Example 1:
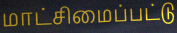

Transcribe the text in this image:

மாட்சிமைப்பட்டு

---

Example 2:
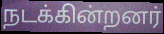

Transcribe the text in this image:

நடக்கின்றனர்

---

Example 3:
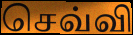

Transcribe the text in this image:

செவ்வி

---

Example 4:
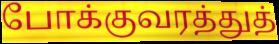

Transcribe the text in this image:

போக்குவரத்துத்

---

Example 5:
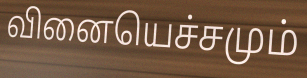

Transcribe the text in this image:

வினையெச்சமும்